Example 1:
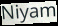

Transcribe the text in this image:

Niyam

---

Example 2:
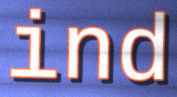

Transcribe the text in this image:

ind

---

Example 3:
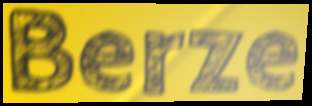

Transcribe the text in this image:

Berze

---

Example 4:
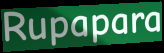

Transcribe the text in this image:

Rupapara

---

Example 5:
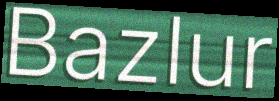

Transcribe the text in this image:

Bazlur